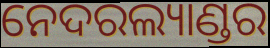
ନେଦରଲ୍ୟାଣ୍ଡର